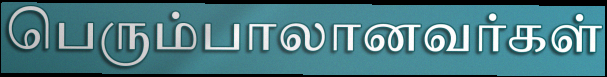
பெரும்பாலானவர்கள்